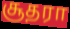
சூதரா